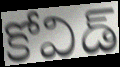
కోవిడ్